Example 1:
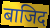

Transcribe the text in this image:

बाजिद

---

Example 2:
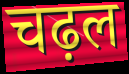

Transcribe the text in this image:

चढ़ल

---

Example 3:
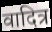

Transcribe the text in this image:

वादित्र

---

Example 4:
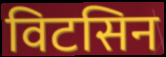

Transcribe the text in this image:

विटसिन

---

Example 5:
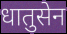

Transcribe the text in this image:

धातुसेन